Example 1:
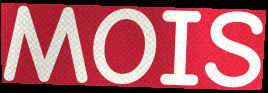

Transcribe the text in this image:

MOIS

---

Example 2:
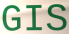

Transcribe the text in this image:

GIS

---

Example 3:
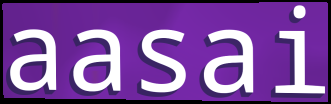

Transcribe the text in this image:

aasai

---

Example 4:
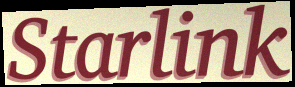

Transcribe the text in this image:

Starlink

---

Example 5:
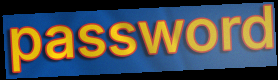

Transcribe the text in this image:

password